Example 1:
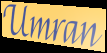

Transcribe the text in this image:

Umran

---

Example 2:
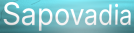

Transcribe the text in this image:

Sapovadia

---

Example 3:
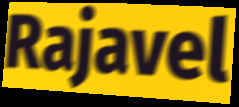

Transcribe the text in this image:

Rajavel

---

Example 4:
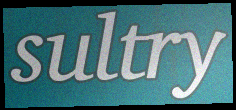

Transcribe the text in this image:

sultry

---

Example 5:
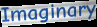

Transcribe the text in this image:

Imaginary